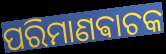
ପରିମାଣଵାଚକ